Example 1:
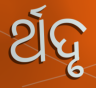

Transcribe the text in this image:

ର୍ଥଦୃ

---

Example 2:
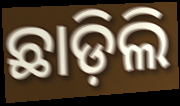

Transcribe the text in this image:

ଛାଡ଼ିଲି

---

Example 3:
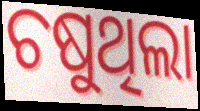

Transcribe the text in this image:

ଚଷୁଥିଲା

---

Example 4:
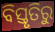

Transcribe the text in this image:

ବିସ୍ତୃତିରୁ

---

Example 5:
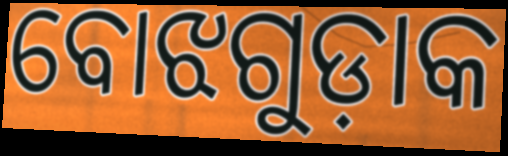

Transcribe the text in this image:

ବୋଝଗୁଡ଼ାକ